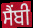
ਸੈਂਬੀ